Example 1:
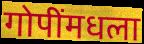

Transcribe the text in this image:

गोपींमधला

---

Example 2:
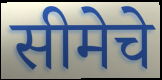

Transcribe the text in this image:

सीमेचे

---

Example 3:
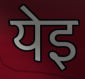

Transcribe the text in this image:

येइ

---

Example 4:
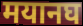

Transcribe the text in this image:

मयानघ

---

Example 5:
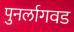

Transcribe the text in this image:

पुनर्लागवड